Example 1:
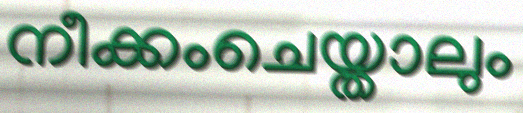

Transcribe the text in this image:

നീക്കംചെയ്താലും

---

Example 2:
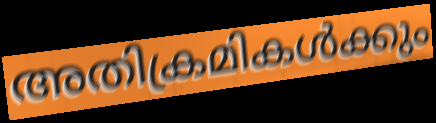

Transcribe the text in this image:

അതിക്രമികൾക്കും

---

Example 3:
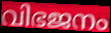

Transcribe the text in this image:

വിഭജനം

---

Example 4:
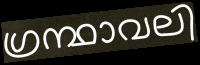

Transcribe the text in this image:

ഗ്രന്ഥാവലി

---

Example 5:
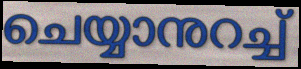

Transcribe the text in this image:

ചെയ്യാനുറച്ച്